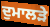
ਦੁਮਾਲੜੇ